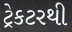
ટ્રેકટરથી